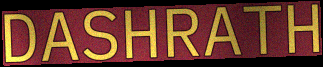
DASHRATH